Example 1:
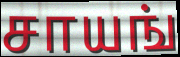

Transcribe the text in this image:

சாயங்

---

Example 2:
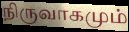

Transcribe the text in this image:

நிருவாகமும்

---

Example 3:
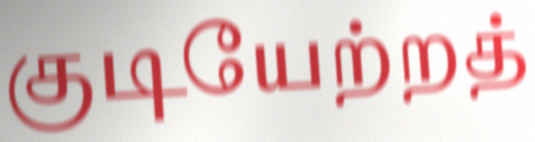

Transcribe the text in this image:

குடியேற்றத்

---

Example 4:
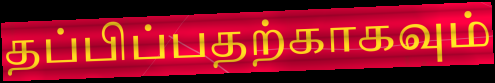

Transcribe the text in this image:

தப்பிப்பதற்காகவும்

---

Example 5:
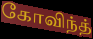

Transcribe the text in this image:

கோவிந்த்